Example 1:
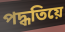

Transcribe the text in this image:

পদ্ধতিয়ে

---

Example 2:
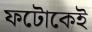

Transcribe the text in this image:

ফটোকেই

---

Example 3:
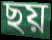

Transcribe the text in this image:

ছয়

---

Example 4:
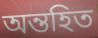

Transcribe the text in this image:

অন্তহিত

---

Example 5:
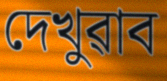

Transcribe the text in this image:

দেখুৱাব